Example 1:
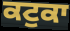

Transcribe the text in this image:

ਕਟੁਕਾ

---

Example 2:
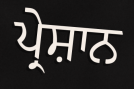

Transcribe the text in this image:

ਪ੍ਰੇਸ਼ਾਨ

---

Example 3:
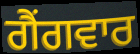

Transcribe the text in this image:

ਗੈਂਗਵਾਰ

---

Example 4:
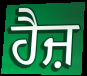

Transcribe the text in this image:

ਹੈਜ਼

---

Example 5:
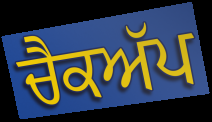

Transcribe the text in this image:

ਚੈਕਅੱਪ